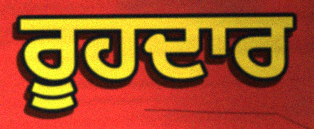
ਰੂਹਦਾਰ